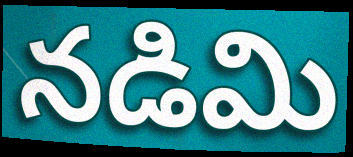
నడిమి